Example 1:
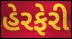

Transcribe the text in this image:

હેરફેરી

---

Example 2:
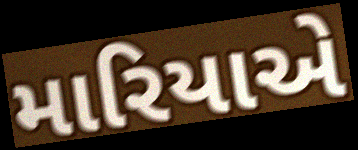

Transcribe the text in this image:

મારિયાએ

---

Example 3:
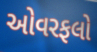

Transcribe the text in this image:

ઓવરફલો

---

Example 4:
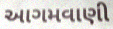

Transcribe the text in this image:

આગમવાણી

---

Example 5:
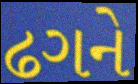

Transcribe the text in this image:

ઢગને